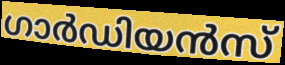
ഗാർഡിയൻസ്